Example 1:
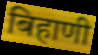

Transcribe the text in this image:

बिहाणी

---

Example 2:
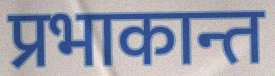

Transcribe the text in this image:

प्रभाकान्त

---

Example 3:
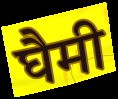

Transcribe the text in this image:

घैमी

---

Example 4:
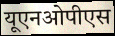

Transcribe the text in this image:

यूएनओपीएस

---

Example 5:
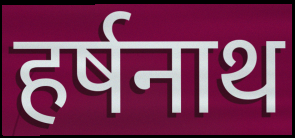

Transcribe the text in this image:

हर्षनाथ